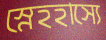
স্নেহহাস্যে